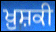
ਖ਼ੁਸ਼ਕੀ